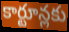
కార్టూన్లకు